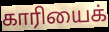
காரியைக்